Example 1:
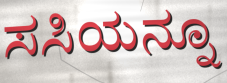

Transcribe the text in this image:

ಸಸಿಯನ್ನೂ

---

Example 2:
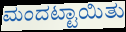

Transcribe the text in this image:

ಮಂದಟ್ಟಾಯಿತು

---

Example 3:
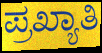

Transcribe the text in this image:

ಪ್ರಖ್ಯಾತಿ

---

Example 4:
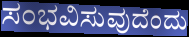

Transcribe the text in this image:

ಸಂಭವಿಸುವುದೆಂದು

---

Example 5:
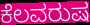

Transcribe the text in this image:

ಕೆಲವರುಷ